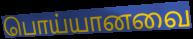
பொய்யானவை